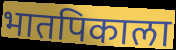
भातपिकाला